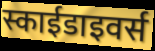
स्काईडाइवर्स